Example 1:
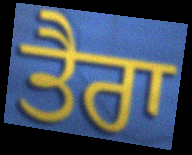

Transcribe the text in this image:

ਤੈਰਾ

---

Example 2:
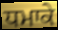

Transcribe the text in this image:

ਧਮਾਕੇ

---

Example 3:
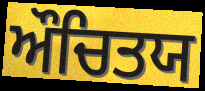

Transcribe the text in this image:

ਔਚਿਤਯ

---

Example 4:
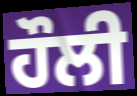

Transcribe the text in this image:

ਹੌਲੀ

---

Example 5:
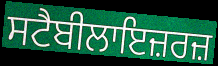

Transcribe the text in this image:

ਸਟੈਬੀਲਾਇਜ਼ਰਜ਼